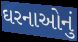
ઘરનાઓનું